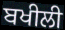
ਬਖੀਲੀ